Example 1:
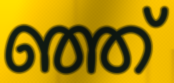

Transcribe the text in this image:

ഞ്ഞ്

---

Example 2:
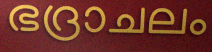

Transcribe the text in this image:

ഭദ്രാചലം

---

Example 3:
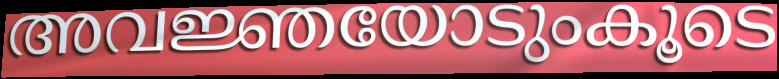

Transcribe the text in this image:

അവജ്ഞയോടുംകൂടെ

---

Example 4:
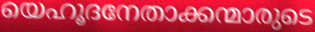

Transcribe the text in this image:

യെഹൂദനേതാക്കന്മാരുടെ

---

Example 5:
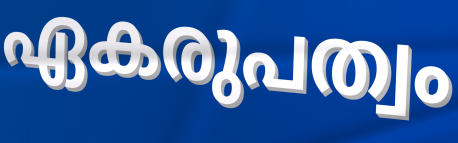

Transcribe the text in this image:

ഏകരുപത്വം